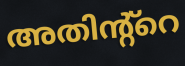
അതിന്റ്റെ